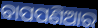
ବାପପଣିଆର